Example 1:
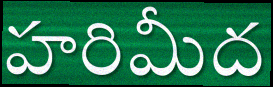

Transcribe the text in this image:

హరిమీద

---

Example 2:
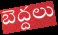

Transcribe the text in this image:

బెద్దలు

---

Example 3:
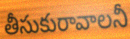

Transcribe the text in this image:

తీసుకురావాలనీ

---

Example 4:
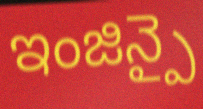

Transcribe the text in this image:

ఇంజిన్పై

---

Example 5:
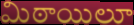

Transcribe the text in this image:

మిఠాయిలూ